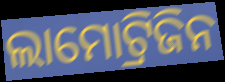
ଲାମୋଟ୍ରିଜିନ